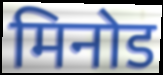
मिनोड